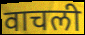
वाचली